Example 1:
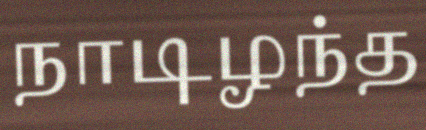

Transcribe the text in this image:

நாடிழந்த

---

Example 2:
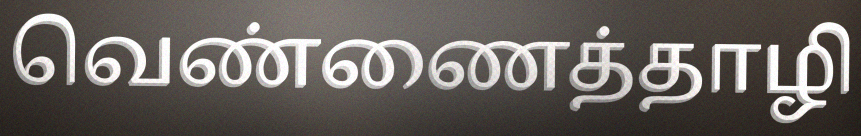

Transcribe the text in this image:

வெண்ணைத்தாழி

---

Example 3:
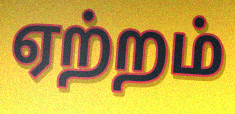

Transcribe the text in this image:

ஏற்றம்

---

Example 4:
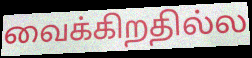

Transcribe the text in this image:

வைக்கிறதில்ல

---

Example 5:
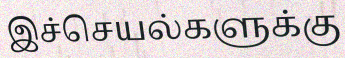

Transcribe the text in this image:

இச்செயல்களுக்கு